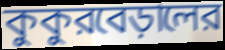
কুকুরবেড়ালের